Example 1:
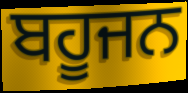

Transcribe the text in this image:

ਬਹੂਜਨ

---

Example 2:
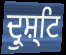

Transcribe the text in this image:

ਦ੍ਰੁਸ਼੍ਟਿ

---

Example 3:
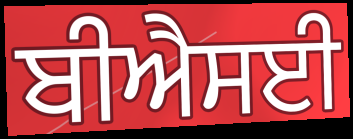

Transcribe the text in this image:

ਬੀਐਸਈ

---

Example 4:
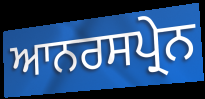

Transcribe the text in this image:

ਆਨਰਸਪ੍ਰੇਨ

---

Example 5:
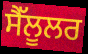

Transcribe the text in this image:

ਸੈੱਲੂਲਰ